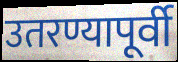
उतरण्यापूर्वी